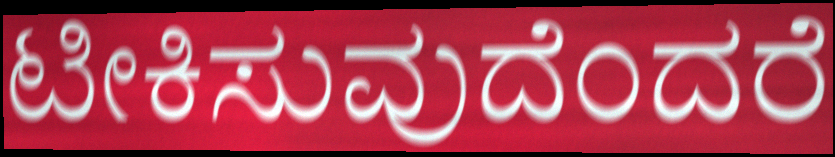
ಟೀಕಿಸುವುದೆಂದರೆ